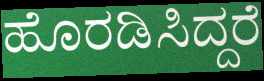
ಹೊರಡಿಸಿದ್ದರೆ